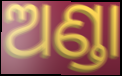
ଅଣ୍ଡା